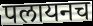
पलायनच